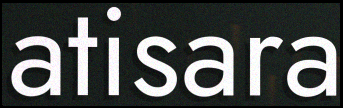
atisara